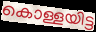
കൊള്ളയിട്ട